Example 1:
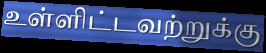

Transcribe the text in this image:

உள்ளிட்டவற்றுக்கு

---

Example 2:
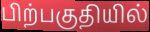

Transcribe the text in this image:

பிற்பகுதியில்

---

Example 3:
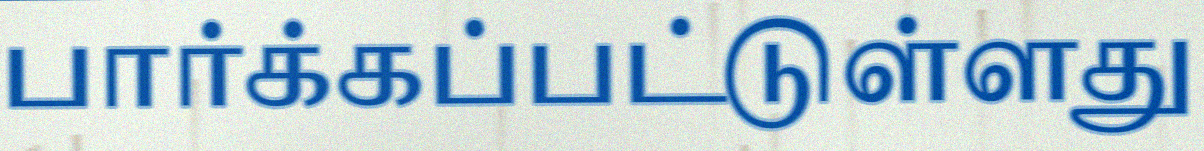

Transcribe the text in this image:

பார்க்கப்பட்டுள்ளது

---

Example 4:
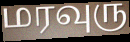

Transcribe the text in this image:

மரவுரு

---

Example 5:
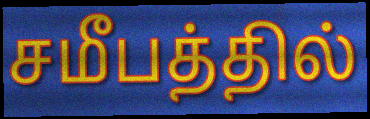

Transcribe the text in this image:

சமீபத்தில்